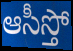
ఆసీస్తో